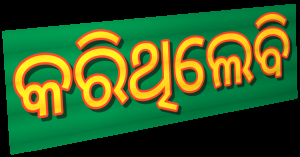
କରିଥିଲେବି